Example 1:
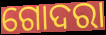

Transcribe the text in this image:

ଗୋଦରା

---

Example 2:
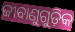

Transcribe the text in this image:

ଜୀବାଣୁଗୁଡ଼ିକ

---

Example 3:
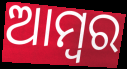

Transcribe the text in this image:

ଆମ୍ବର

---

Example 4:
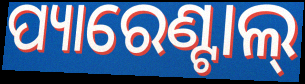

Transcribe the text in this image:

ପ୍ୟାରେଣ୍ଟାଲ୍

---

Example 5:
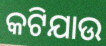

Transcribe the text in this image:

କଟିଯାଉ